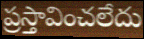
ప్రస్తావించలేదు